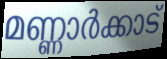
മണ്ണാർക്കാട്